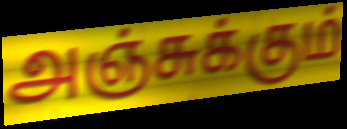
அஞ்சுக்கும்